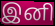
இனி